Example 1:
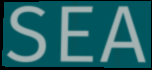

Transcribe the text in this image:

SEA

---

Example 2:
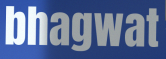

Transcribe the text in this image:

bhagwat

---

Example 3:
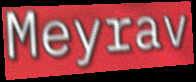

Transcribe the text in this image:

Meyrav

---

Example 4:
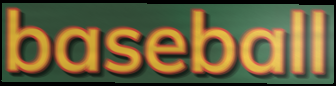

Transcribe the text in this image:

baseball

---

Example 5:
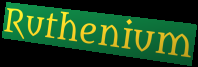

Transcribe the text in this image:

Ruthenium